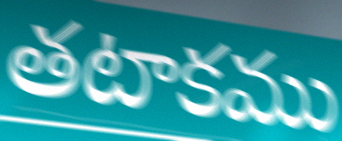
తటాకము